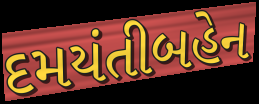
દમયંતીબહેન